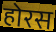
होरस